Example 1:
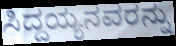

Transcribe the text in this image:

ಸಿದ್ದಯ್ಯನವರನ್ನು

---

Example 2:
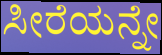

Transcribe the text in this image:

ಸೀರೆಯನ್ನೇ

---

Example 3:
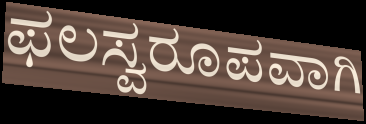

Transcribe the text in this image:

ಫಲಸ್ವರೂಪವಾಗಿ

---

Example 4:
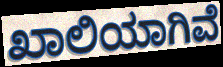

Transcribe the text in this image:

ಖಾಲಿಯಾಗಿವೆ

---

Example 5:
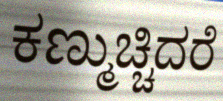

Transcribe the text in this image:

ಕಣ್ಮುಚ್ಚಿದರೆ